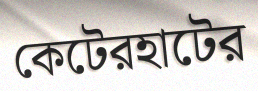
কেটেরহাটের